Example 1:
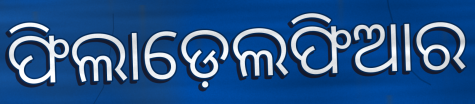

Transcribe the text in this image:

ଫିଲାଡ଼େଲଫିଆର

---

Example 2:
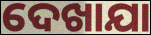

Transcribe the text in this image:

ଦେଖାଯା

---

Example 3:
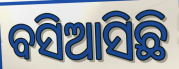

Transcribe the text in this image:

ବସିଆସିଛି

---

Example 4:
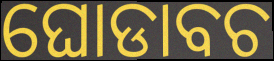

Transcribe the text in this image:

ଘୋଡାବଚ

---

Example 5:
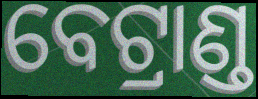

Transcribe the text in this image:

ବେଟ୍ରାଣ୍ଡ